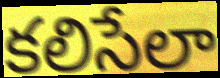
కలిసేలా